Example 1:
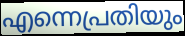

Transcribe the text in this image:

എന്നെപ്രതിയും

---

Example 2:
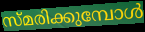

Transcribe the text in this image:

സ്മരിക്കുമ്പോൾ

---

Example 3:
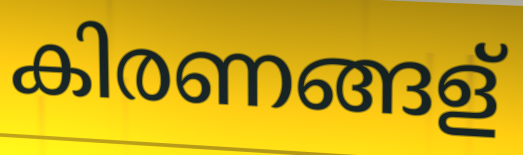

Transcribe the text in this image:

കിരണങ്ങള്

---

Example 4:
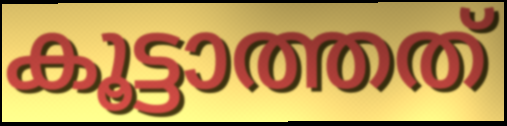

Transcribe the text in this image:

കൂട്ടാത്തത്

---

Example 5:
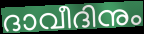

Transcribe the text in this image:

ദാവീദിനും